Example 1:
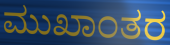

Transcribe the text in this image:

ಮುಖಾಂತರ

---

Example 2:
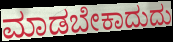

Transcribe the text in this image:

ಮಾಡಬೇಕಾದುದು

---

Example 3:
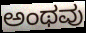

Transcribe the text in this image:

ಅಂಥವು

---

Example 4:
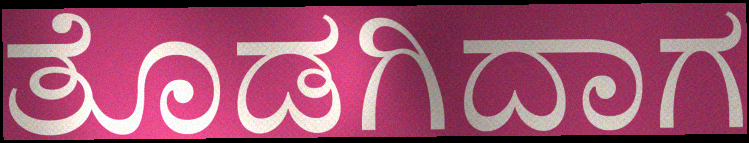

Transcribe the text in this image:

ತೊಡಗಿದಾಗ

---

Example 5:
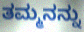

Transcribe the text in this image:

ತಮ್ಮನನ್ನು